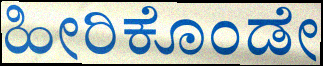
ಹೀರಿಕೊಂಡೇ